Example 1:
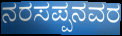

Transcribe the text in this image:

ನರಸಪ್ಪನವರ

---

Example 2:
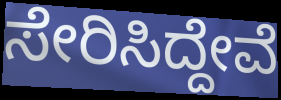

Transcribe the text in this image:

ಸೇರಿಸಿದ್ದೇವೆ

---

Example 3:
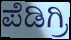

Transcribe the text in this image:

ಪೆಡಿಗ್ರಿ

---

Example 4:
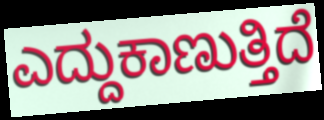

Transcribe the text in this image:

ಎದ್ದುಕಾಣುತ್ತಿದೆ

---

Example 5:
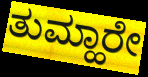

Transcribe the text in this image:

ತುಮ್ಹಾರೇ